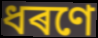
ধৰণে